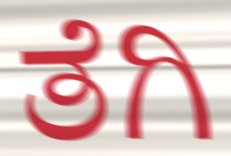
ತೆಗಿ